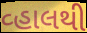
વ્હાલથી